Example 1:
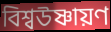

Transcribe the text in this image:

বিশ্বউষ্ণায়ণ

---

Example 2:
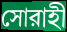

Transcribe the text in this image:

সোরাহী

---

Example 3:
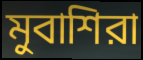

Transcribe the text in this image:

মুবাশিরা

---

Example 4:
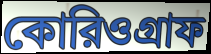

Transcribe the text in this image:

কোরিওগ্রাফ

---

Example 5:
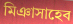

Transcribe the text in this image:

মিঞাসাহেব